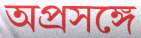
অপ্রসঙ্গে